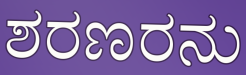
ಶರಣರನು